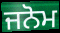
ਜਨੋਮ